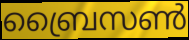
ബ്രൈസൺ